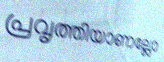
പ്രവൃത്തിയാണല്ലോ